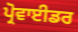
ਪ੍ਰੋਵਾਈਡਰ